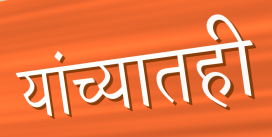
यांच्यातही